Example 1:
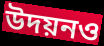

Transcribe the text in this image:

উদয়নও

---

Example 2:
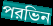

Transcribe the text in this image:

পরভিন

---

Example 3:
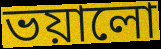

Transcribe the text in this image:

ভয়ালো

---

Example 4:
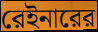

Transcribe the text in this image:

রেইনারের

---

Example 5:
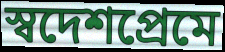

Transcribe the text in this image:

স্বদেশপ্রেমে